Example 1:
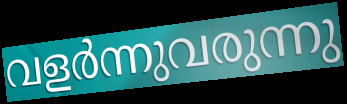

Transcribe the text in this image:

വളർന്നുവരുന്നു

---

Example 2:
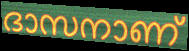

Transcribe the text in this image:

ദാസനാണ്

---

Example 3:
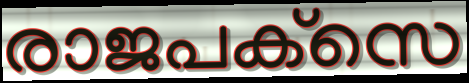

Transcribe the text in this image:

രാജപക്‌സെ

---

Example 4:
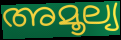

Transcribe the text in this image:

അമൂല്യ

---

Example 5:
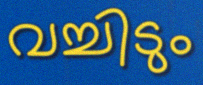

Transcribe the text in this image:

വച്ചിടും